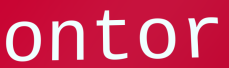
ontor